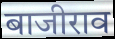
बाजीराव